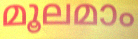
മൂലമാം